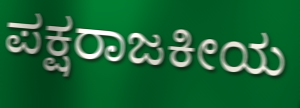
ಪಕ್ಷರಾಜಕೀಯ